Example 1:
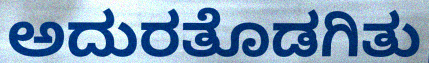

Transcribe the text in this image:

ಅದುರತೊಡಗಿತು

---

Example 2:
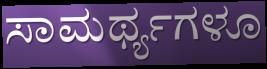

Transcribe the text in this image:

ಸಾಮರ್ಥ್ಯಗಳೂ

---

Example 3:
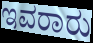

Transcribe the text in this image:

ಇವರಾರು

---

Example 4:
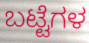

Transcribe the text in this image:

ಬಟ್ಟೆಗಳ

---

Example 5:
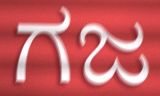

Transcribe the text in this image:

ಗಜ